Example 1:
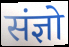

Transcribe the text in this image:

संज्ञो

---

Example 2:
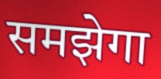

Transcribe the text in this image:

समझेगा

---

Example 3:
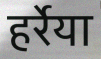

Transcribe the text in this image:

हर्रेया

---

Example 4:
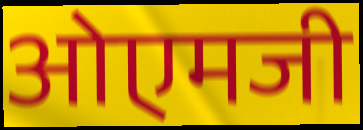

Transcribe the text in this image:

ओएमजी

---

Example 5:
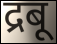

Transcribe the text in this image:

द्रबू